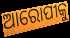
ଆରୋପୀକୁ